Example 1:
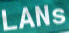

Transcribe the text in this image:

LANs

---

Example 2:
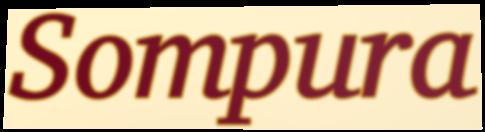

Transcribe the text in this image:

Sompura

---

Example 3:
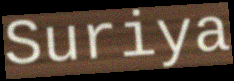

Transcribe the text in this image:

Suriya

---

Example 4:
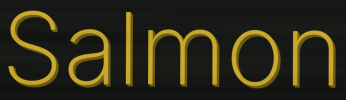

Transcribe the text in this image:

Salmon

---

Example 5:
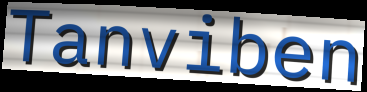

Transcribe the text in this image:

Tanviben